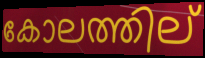
കോലത്തില്